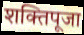
शक्तिपूजा